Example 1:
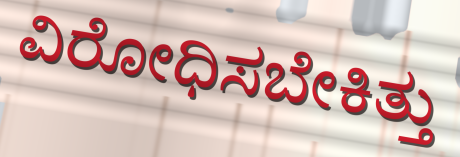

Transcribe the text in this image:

ವಿರೋಧಿಸಬೇಕಿತ್ತು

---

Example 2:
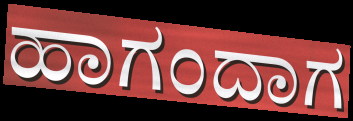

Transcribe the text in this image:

ಹಾಗಂದಾಗ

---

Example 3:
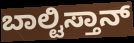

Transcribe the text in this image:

ಬಾಲ್ಟಿಸ್ತಾನ್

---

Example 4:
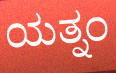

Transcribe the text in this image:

ಯತ್ನಂ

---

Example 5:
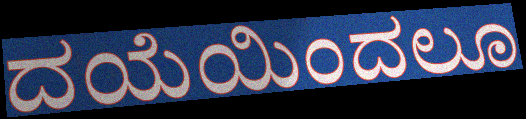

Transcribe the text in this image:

ದಯೆಯಿಂದಲೂ